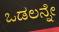
ಒಡಲನ್ನೇ